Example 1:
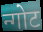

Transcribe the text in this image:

न्गोट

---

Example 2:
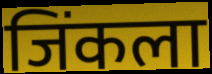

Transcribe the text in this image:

जिंकला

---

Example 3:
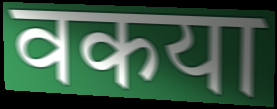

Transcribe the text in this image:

वकया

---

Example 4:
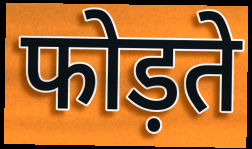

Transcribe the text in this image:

फोड़ते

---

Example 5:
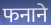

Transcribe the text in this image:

फनाने